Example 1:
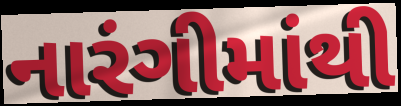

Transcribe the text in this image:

નારંગીમાંથી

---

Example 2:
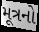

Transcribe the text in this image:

મૂત્રનો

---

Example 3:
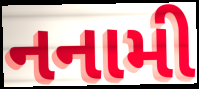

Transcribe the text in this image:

નનામી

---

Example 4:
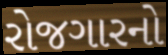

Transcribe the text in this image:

રોજગારનો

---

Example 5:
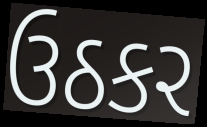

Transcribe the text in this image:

ઉઠકર